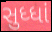
સુધ્ધાં